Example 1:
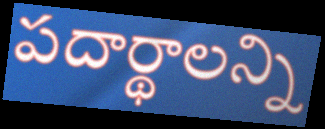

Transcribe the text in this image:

పదార్థాలన్ని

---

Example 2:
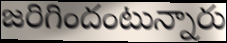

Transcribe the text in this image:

జరిగిందంటున్నారు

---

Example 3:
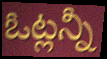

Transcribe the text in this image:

ఓట్లన్నీ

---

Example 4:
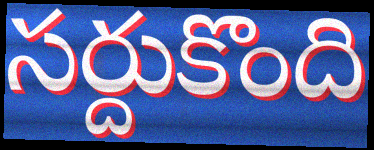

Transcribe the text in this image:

సర్దుకొంది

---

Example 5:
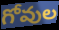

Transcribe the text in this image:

గోవుల